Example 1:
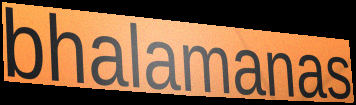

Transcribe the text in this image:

bhalamanas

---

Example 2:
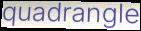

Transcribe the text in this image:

quadrangle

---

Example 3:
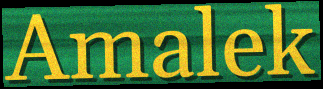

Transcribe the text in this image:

Amalek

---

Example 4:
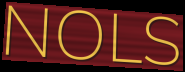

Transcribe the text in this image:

NOLS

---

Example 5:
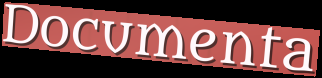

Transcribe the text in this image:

Documenta